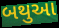
બથુઆ